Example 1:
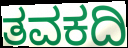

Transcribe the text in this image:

ತವಕದಿ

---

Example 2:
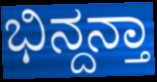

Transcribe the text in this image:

ಭಿನ್ದನ್ತಾ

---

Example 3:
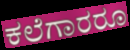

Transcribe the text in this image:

ಕಲೆಗಾರರೂ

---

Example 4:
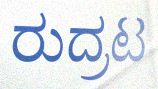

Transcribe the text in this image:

ರುದ್ರಟ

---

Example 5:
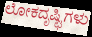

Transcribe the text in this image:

ಲೋಕದೃಷ್ಟಿಗಳು